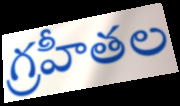
గ్రహీతల